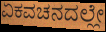
ಏಕವಚನದಲ್ಲೇ